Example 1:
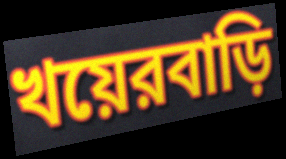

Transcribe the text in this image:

খয়েরবাড়ি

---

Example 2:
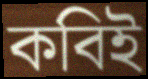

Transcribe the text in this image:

কবিই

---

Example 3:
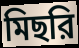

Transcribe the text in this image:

মিছরি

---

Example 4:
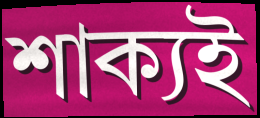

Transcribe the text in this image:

শাক্যই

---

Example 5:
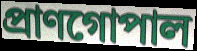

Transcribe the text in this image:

প্রাণগোপাল